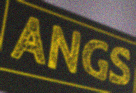
ANGS